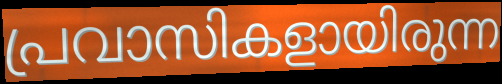
പ്രവാസികളായിരുന്ന